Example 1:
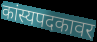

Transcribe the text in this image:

कांस्यपदकावर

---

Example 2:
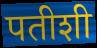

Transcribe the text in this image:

पतीशी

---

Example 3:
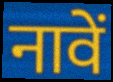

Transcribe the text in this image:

नावें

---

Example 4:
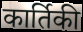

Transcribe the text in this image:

कार्तिकी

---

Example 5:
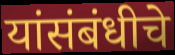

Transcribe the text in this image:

यांसंबंधीचे